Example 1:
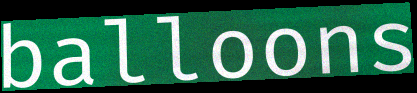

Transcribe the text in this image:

balloons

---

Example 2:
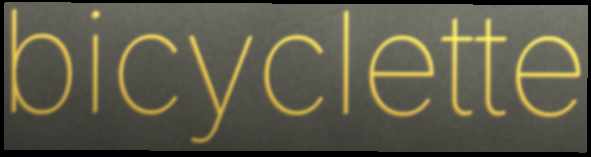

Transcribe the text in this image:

bicyclette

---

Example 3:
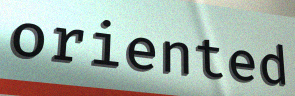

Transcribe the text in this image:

oriented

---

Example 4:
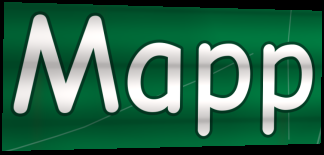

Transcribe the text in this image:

Mapp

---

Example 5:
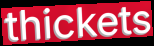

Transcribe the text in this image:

thickets